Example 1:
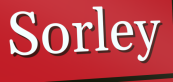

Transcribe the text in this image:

Sorley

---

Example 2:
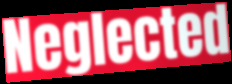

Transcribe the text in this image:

Neglected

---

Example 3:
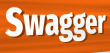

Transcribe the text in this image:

Swagger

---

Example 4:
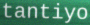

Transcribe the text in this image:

tantiyo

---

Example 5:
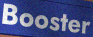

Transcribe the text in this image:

Booster